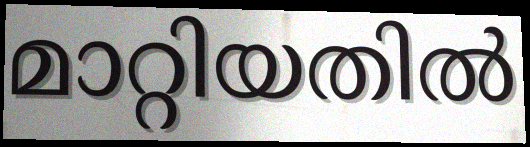
മാറ്റിയതിൽ